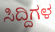
ಸಿದ್ದಿಗಳ